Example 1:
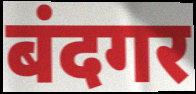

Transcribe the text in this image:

बंदगर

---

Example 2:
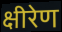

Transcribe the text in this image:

क्षीरेण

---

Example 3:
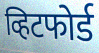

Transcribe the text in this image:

व्हिटफोर्ड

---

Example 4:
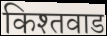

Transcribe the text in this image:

किश्तवाड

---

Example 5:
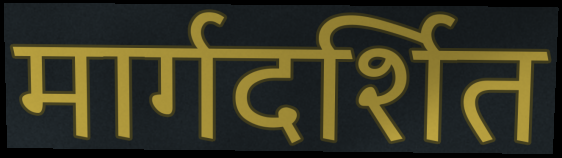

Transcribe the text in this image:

मार्गदर्शित